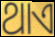
ଥାଏ